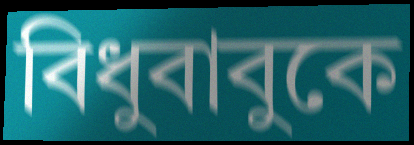
বিধুবাবুকে